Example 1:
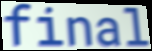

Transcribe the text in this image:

final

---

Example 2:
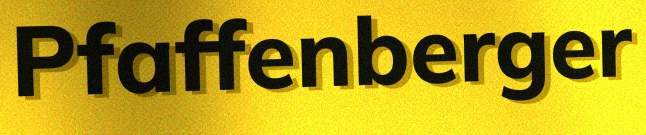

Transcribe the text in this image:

Pfaffenberger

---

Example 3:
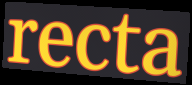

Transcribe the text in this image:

recta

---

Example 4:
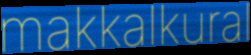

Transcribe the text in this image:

makkalkural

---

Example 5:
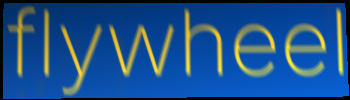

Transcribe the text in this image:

flywheel